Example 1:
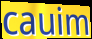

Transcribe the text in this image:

cauim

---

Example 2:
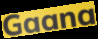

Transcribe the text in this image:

Gaana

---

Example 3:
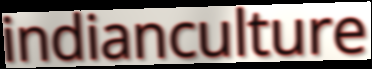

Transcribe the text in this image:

indianculture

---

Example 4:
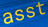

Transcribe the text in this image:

asst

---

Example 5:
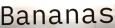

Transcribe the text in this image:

Bananas